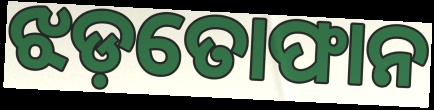
ଝଡ଼ତୋଫାନ